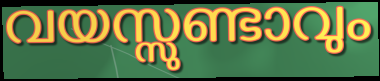
വയസ്സുണ്ടാവും